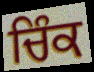
ਚਿੰਕ